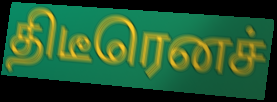
திடீரெனச்